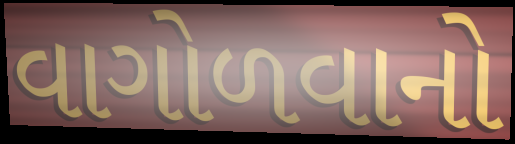
વાગોળવાનો